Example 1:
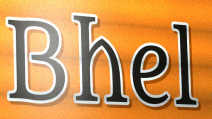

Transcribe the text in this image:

Bhel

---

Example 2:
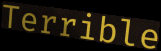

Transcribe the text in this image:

Terrible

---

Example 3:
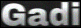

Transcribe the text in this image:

Gadi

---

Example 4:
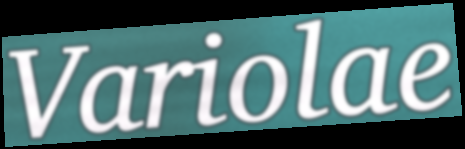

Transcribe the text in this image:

Variolae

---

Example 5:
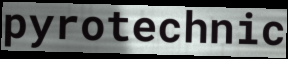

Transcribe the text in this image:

pyrotechnic